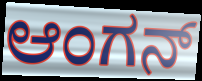
ಆಂಗನ್